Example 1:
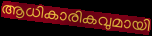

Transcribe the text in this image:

ആധികാരികവുമായി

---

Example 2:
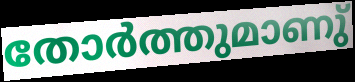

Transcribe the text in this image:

തോർത്തുമാണു്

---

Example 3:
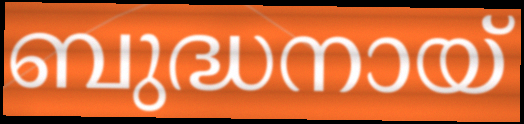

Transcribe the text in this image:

ബുദ്ധനായ്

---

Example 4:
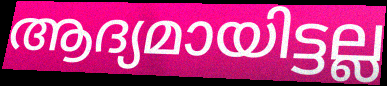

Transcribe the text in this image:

ആദ്യമായിട്ടല്ല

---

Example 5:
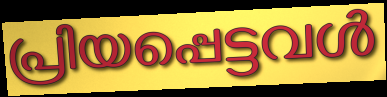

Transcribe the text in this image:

പ്രിയപ്പെട്ടവൾ